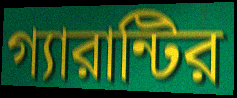
গ্যারান্টির